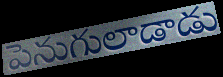
పెనుగులాడాడు